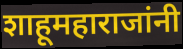
शाहूमहाराजांनी